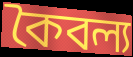
কৈবল্য